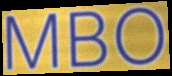
MBO